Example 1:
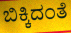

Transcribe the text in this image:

ಬಿಕ್ಕಿದಂತೆ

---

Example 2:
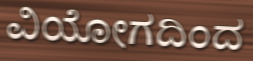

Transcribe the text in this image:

ವಿಯೋಗದಿಂದ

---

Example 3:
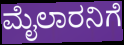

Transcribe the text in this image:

ಮೈಲಾರನಿಗೆ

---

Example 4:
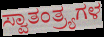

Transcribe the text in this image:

ಸ್ವಾತಂತ್ರ್ಯಗಳ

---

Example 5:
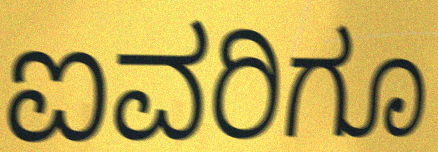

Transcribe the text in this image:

ಐವರಿಗೂ